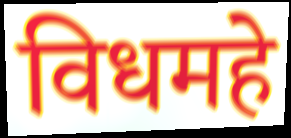
विधमहे